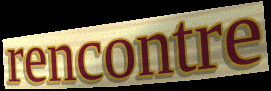
rencontre